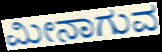
ಮೀನಾಗುವ